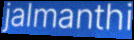
jalmanthi